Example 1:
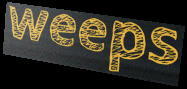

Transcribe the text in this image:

weeps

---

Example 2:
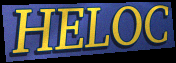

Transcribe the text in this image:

HELOC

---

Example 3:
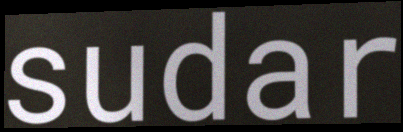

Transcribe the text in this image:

sudar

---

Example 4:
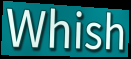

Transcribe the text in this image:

Whish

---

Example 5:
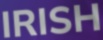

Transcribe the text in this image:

IRISH